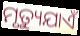
ମୃତ୍ୟୁଯାଏଁ